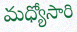
మధ్యోసారి